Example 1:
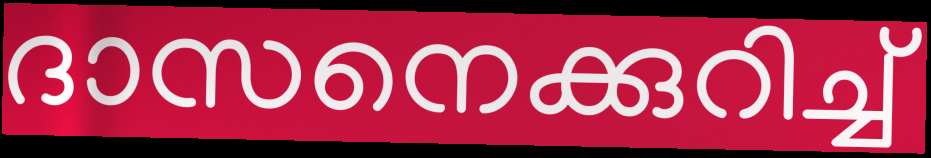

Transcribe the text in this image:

ദാസനെക്കുറിച്ച്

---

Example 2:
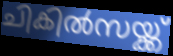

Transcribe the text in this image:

ചികിൽസയ്ക്ക്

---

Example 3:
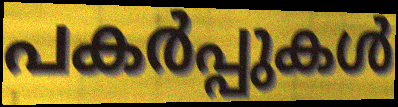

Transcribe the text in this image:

പകർപ്പുകൾ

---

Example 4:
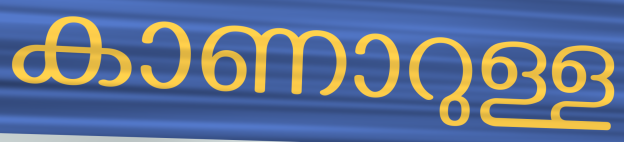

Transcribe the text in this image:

കാണാറുള്ള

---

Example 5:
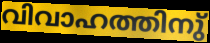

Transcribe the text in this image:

വിവാഹത്തിനു്